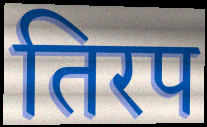
तिरप